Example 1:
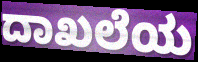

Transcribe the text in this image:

ದಾಖಲೆಯ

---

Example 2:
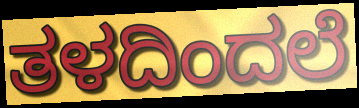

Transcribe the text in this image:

ತಳದಿಂದಲೆ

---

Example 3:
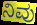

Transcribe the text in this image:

ನಿವು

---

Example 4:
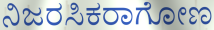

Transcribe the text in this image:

ನಿಜರಸಿಕರಾಗೋಣ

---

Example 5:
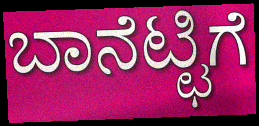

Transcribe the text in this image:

ಬಾನೆಟ್ಟಿಗೆ